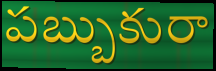
పబ్బుకురా